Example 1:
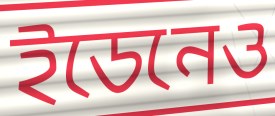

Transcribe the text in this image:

ইডেনেও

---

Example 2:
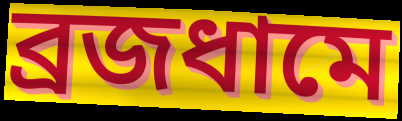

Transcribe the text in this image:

ব্রজধামে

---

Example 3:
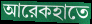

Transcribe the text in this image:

আরেকহাতে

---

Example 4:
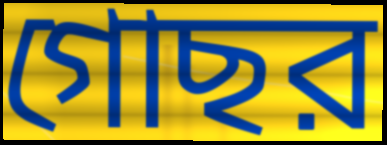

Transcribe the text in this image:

গোছর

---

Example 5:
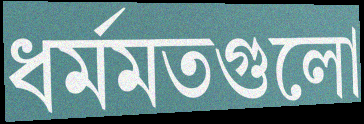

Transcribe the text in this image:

ধর্মমতগুলো